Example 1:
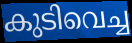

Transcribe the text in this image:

കുടിവെച്ച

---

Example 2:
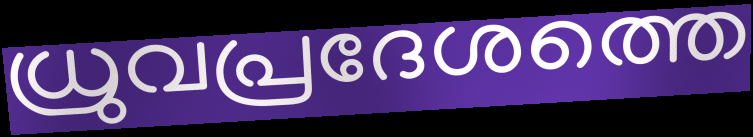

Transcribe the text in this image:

ധ്രുവപ്രദേശത്തെ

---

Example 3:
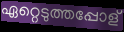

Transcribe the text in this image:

ഏറ്റെടുത്തപ്പോള്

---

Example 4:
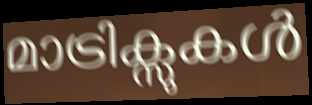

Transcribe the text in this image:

മാട്രിക്സുകൾ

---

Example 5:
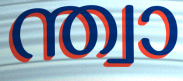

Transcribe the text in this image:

ന്ത്വാ